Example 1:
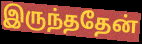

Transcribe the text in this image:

இருந்ததேன்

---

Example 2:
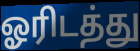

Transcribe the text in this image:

ஓரிடத்து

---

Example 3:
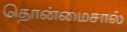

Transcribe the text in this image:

தொன்மைசால்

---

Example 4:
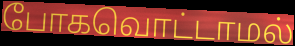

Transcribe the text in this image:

போகவொட்டாமல்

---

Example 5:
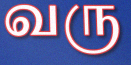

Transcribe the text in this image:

வரு